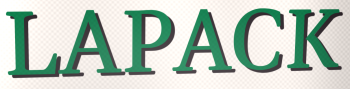
LAPACK